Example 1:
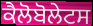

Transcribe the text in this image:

ਕੈਲੋਬੋਲੇਟਸ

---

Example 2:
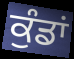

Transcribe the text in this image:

ਕੁੰਡਾਂ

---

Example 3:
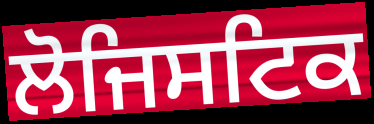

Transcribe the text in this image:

ਲੋਜਿਸਟਿਕ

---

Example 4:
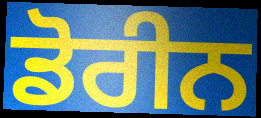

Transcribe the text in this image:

ਡੋਰੀਨ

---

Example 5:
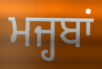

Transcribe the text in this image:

ਮਜ੍ਹਬਾਂ